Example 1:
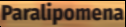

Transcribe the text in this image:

Paralipomena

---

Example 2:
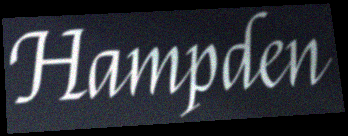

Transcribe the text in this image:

Hampden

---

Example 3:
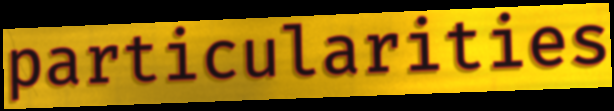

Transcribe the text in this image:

particularities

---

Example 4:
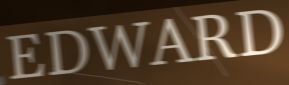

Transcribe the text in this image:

EDWARD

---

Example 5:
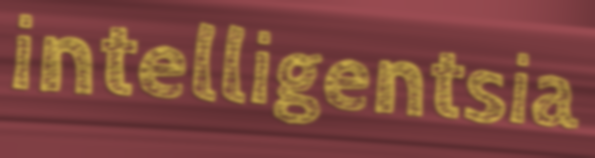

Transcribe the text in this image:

intelligentsia